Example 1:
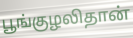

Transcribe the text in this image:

பூங்குழலிதான்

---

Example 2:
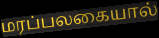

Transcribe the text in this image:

மரப்பலகையால்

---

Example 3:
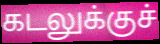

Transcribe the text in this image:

கடலுக்குச்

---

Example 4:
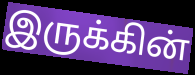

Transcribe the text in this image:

இருக்கின்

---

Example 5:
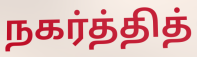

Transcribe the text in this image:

நகர்த்தித்